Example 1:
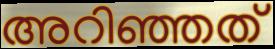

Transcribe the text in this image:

അറിഞ്ഞത്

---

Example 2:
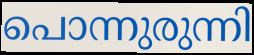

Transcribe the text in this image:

പൊന്നുരുന്നി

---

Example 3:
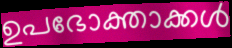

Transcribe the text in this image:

ഉപഭോക്താക്കൾ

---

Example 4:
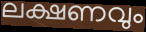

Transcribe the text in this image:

ലക്ഷണവും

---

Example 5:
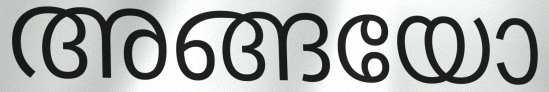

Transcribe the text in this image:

അങ്ങയോ